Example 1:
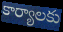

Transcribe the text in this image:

కార్యాలకు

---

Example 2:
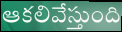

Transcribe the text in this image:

ఆకలివేస్తుంది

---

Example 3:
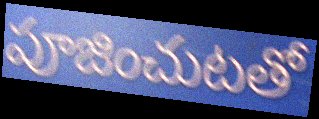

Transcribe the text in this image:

పూజించుటతో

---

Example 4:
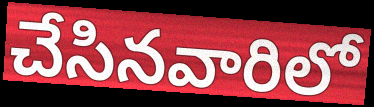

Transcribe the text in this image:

చేసినవారిలో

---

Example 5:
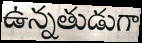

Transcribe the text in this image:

ఉన్నతుడుగా